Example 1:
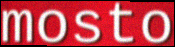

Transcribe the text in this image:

mosto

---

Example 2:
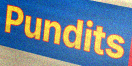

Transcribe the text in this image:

Pundits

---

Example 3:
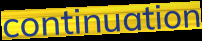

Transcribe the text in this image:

continuation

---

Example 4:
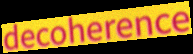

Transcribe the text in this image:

decoherence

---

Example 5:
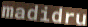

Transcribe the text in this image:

madidru